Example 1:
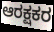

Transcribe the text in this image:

ಆರಕ್ಷಕರ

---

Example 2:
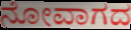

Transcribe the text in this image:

ನೋವಾಗದ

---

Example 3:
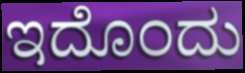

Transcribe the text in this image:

ಇದೊಂದು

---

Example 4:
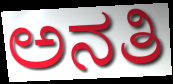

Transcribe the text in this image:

ಅನತಿ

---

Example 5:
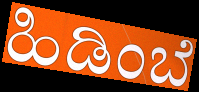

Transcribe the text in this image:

ಹಿಡಿಂಬೆ